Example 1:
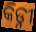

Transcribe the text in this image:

କିଡ୍ନୀ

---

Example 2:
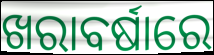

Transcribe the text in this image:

ଖରାବର୍ଷାରେ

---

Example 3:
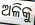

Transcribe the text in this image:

ଅଳିକୁ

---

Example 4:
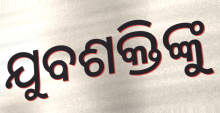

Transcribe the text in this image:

ଯୁବଶକ୍ତିଙ୍କୁ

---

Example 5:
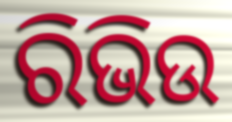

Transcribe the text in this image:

ରିଭିଉ